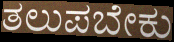
ತಲುಪಬೇಕು